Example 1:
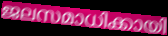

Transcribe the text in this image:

ജലസമാധിക്കായി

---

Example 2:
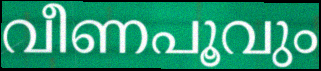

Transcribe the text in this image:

വീണപൂവും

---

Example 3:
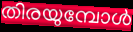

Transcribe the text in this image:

തിരയുമ്പോൾ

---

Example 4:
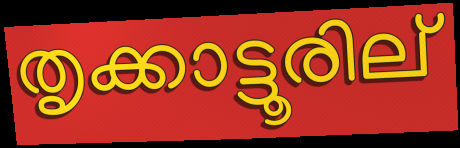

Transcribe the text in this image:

തൃക്കാട്ടൂരില്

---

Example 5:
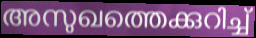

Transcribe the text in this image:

അസുഖത്തെക്കുറിച്ച്